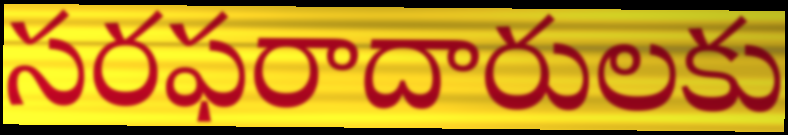
సరఫరాదారులకు